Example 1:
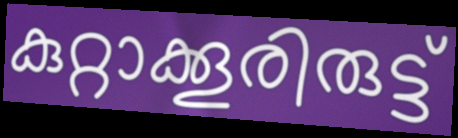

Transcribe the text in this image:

കുറ്റാക്കൂരിരുട്ട്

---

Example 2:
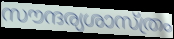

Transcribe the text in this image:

സൗന്ദര്യശാസ്ത്രം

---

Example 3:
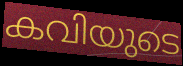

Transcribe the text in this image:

കവിയുടെ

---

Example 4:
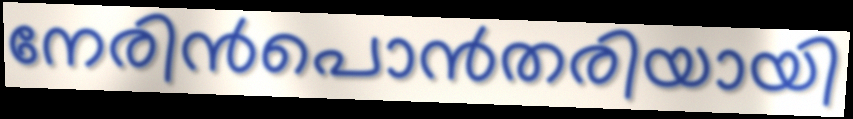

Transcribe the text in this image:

നേരിൻപൊൻതരിയായി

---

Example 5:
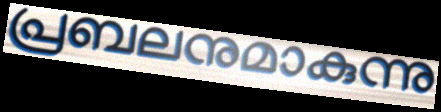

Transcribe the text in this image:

പ്രബലനുമാകുന്നു